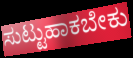
ಸುಟ್ಟುಹಾಕಬೇಕು